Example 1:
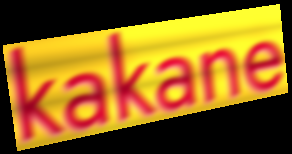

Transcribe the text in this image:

kakane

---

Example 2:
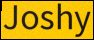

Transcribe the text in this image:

Joshy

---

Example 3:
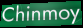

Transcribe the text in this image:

Chinmoy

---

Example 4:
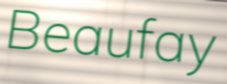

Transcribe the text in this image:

Beaufay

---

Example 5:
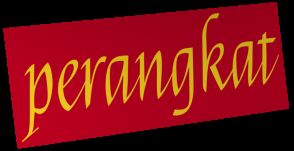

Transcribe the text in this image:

perangkat